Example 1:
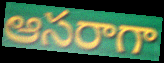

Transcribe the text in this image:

ఆసరాగా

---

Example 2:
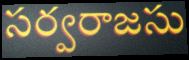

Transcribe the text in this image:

సర్వరాజసు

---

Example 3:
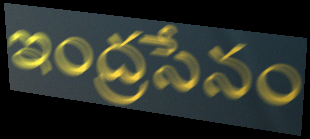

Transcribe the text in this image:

ఇంద్రసేనం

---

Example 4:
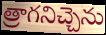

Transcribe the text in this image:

త్రాగనిచ్చెను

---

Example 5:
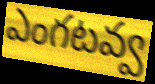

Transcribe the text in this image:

ఎంగటవ్వ